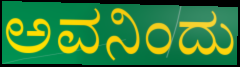
ಅವನಿಂದು